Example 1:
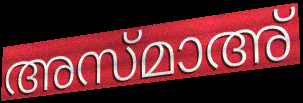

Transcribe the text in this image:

അസ്മാഅ്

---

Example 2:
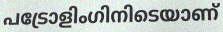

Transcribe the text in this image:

പട്രോളിംഗിനിടെയാണ്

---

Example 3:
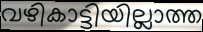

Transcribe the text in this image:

വഴികാട്ടിയില്ലാത്ത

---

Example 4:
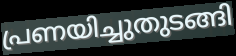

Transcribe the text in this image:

പ്രണയിച്ചുതുടങ്ങി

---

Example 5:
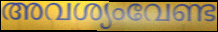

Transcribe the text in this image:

അവശ്യംവേണ്ട